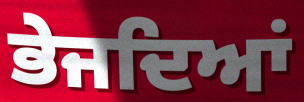
ਭੇਜਦਿਆਂ